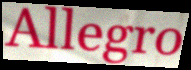
Allegro